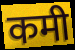
कमी